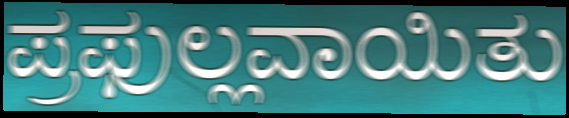
ಪ್ರಫುಲ್ಲವಾಯಿತು